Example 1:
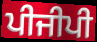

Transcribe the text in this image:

ਪੀਜੀਪੀ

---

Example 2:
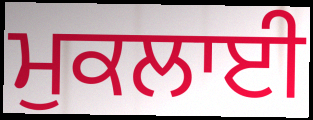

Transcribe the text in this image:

ਮੁਕਲਾਈ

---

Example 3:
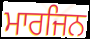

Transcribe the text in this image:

ਮਾਰਜਿਨ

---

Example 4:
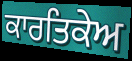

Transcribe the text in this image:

ਕਾਰਤਿਕੇਅ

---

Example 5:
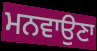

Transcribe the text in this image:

ਮਨਵਾਉਣਾ